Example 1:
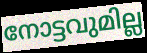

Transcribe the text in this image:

നോട്ടവുമില്ല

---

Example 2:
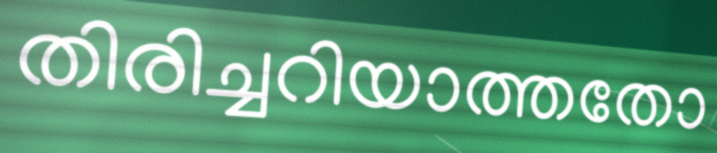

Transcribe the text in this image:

തിരിച്ചറിയാത്തതോ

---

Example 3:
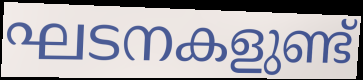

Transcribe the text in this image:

ഘടനകളുണ്ട്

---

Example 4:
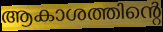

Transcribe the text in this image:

ആകാശത്തിന്റെ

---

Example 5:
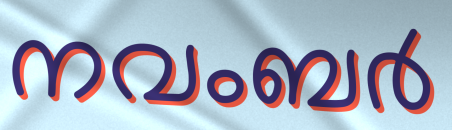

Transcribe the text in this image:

നവംബർ